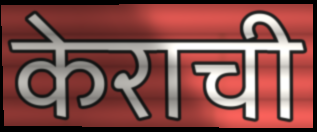
केराची